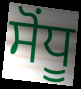
ਸੋਂਧੂ